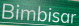
Bimbisar